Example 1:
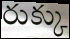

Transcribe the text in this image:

రుక్కు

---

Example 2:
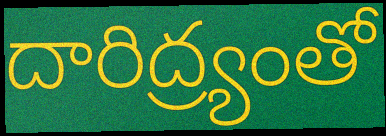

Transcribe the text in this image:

దారిద్ర్యంతో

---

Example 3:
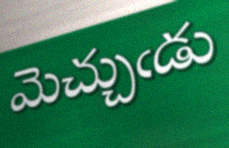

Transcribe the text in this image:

మెచ్చుఁడు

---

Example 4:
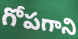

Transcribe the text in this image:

గోపగాని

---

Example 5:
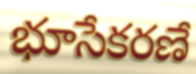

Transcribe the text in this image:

భూసేకరణే